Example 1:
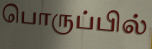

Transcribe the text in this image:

பொருப்பில்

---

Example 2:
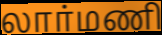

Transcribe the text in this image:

லார்மணி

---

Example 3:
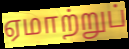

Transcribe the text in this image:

ஏமாற்றுப்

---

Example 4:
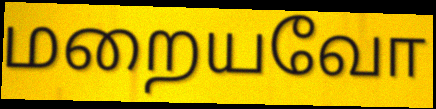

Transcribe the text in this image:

மறையவோ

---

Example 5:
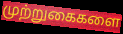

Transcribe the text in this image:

முற்றுகைகளை